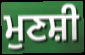
ਮੁਣਸ਼ੀ